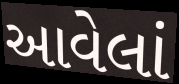
આવેલાં